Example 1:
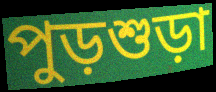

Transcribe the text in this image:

পুড়শুড়া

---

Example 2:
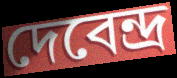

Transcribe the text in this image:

দেবেন্দ্র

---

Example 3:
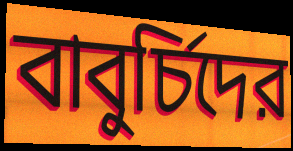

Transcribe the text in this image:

বাবুর্চিদের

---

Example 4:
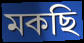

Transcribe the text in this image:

মকছি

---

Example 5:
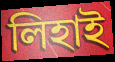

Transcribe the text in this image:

লিহাই